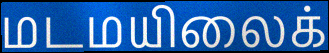
மடமயிலைக்